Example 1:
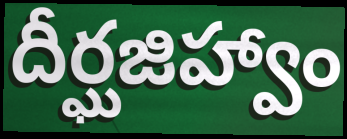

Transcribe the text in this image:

దీర్ఘజిహ్వాం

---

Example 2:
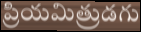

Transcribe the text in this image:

ప్రియమిత్రుడగు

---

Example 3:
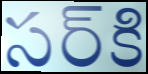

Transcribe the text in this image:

సర్‌కి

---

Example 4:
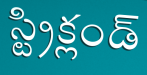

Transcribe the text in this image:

స్ట్రిక్లండ్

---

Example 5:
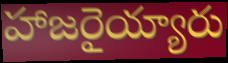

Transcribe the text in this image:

హాజరైయ్యారు